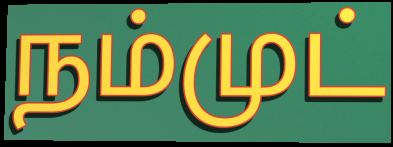
நம்முட்